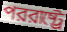
পররাষ্ট্রে